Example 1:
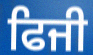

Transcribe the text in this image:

ਫਿਜੀ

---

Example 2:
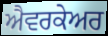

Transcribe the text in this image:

ਐਵਰਕੇਅਰ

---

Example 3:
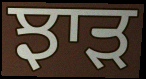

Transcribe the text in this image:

ਝਾੜ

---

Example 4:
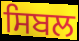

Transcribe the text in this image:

ਸਿਬਲ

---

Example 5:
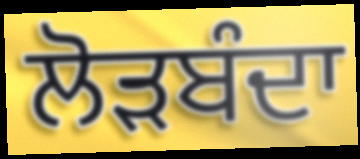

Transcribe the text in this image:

ਲੋੜਬੰਦਾ